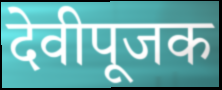
देवीपूजक